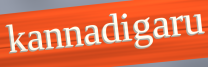
kannadigaru